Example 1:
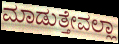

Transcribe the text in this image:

ಮಾಡುತ್ತೇವಲ್ಲಾ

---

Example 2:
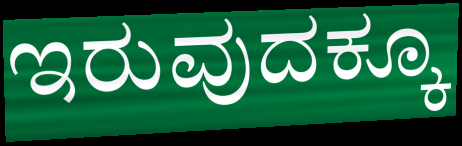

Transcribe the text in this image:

ಇರುವುದಕ್ಕೂ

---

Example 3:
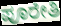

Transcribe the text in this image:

ಪೂರೇತಿ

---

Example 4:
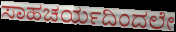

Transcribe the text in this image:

ಸಾಹಚರ್ಯದಿಂದಲೇ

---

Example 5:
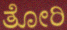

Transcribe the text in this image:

ತೋರಿ